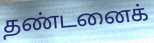
தண்டனைக்